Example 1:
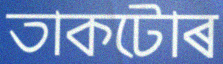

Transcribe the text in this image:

তাকটোৰ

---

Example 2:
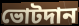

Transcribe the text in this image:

ভোটদান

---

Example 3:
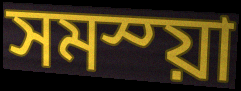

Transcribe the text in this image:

সমস্য়া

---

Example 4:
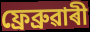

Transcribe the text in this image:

ফ্ৰেব্ৰুৱাৰী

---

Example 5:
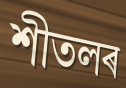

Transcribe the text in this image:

শীতলৰ